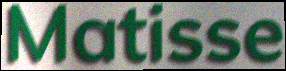
Matisse